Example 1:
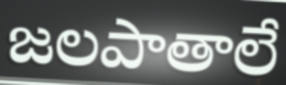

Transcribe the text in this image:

జలపాతాలే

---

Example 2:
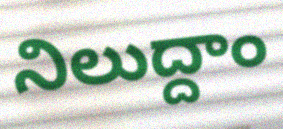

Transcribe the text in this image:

నిలుద్దాం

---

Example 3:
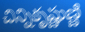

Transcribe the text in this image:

చిన్నికృష్ణుణ్ణి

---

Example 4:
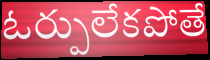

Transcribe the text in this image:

ఓర్పులేకపోతే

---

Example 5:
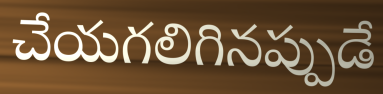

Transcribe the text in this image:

చేయగలిగినప్పుడే